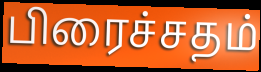
பிரைச்சதம்